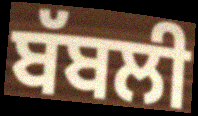
ਬੱਬਲੀ